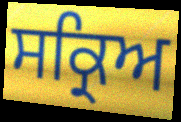
ਸਕ੍ਰਿਅ